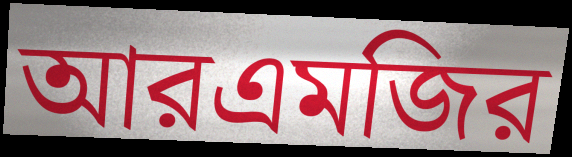
আরএমজির